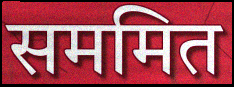
सममित